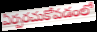
ఏర్పరచుకోవడంలో